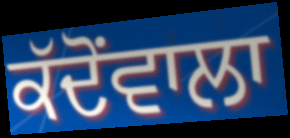
ਕੱਦੋਂਵਾਲਾ